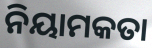
ନିୟାମକତା